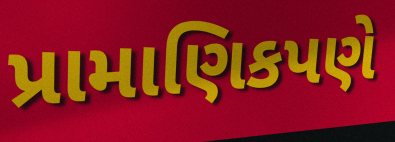
પ્રામાણિકપણે